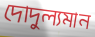
দোদুল্যমান